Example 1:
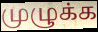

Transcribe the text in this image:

முழுக்க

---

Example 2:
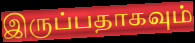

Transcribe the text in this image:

இருப்பதாகவும்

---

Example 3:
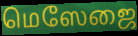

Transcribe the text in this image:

மெஸேஜை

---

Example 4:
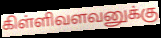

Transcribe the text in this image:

கிள்ளிவளவனுக்கு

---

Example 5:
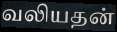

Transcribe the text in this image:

வலியதன்